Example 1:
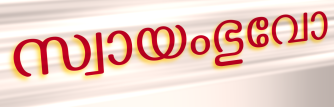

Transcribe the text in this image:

സ്വായംഭുവോ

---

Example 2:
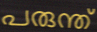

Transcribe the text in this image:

പരുന്ത്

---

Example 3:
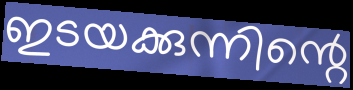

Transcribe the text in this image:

ഇടയക്കുന്നിന്റെ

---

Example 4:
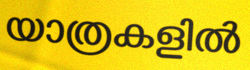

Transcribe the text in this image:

യാത്രകളിൽ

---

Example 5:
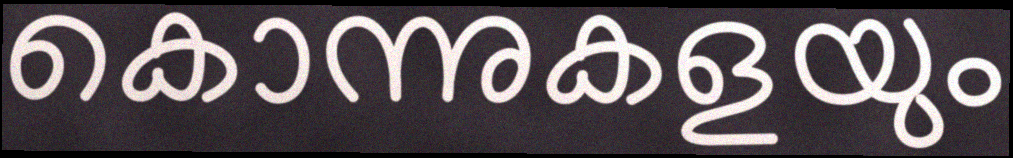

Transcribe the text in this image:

കൊന്നുകളയും